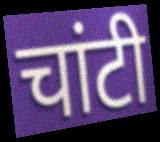
चांटी